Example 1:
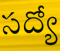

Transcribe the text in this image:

సద్యో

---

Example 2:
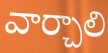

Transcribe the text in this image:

వార్చాలి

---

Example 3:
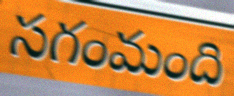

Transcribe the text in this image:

సగంమంది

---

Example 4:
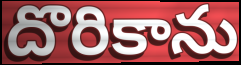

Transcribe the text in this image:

దొరికాను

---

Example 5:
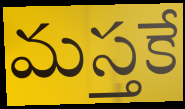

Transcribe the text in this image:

మస్తకే